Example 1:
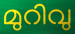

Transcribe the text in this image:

മുറിവു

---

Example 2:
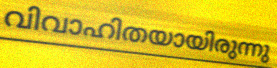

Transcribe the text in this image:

വിവാഹിതയായിരുന്നു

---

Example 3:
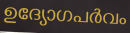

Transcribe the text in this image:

ഉദ്യോഗപർവം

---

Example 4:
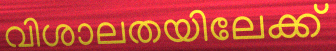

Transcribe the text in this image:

വിശാലതയിലേക്ക്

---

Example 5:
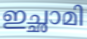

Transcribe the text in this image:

ഇച്ഛാമി